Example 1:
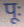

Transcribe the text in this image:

पूः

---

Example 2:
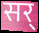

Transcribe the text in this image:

सर्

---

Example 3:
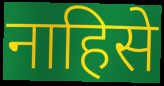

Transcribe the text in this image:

नाहिसे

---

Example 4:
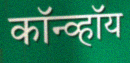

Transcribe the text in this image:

कॉन्व्हॉय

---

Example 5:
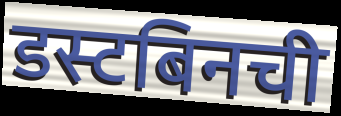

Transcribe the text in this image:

डस्टबिनची